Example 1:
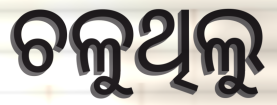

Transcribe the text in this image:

ଚଳୁଥିଲୁ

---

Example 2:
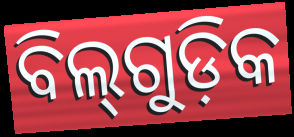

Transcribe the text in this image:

ବିଲ୍‌ଗୁଡ଼ିକ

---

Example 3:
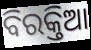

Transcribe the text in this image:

ବିରକ୍ତିଆ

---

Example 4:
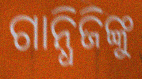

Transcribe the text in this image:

ଗାନ୍ଧିଜିଙ୍କୁ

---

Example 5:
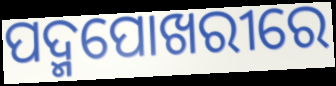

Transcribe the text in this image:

ପଦ୍ମପୋଖରୀରେ